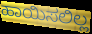
ಹಾಯಿಸಲಿಲ್ಲ